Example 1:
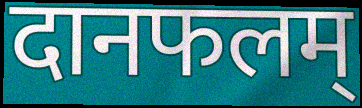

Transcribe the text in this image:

दानफलम्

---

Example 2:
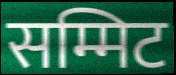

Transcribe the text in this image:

सम्मिट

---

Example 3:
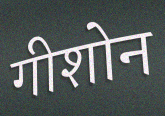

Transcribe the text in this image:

गीशोन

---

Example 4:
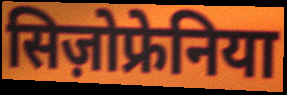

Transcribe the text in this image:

सिज़ोफ्रेनिया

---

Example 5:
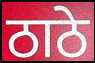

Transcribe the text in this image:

ठाठे